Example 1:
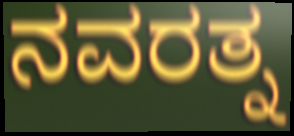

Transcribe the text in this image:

ನವರತ್ನ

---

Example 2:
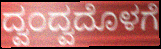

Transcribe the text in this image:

ದ್ವಂದ್ವದೊಳಗೆ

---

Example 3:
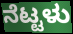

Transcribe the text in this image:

ನೆಟ್ಟಳು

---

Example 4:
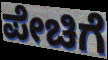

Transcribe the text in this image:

ಪೇಚಿಗೆ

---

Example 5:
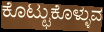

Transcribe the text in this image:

ಕೊಟ್ಟುಕೊಳ್ಳುವ